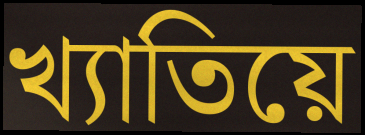
খ্যাতিয়ে